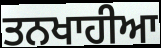
ਤਨਖਾਹੀਆ